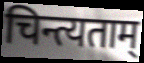
चिन्त्यताम्